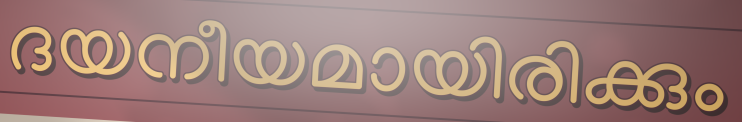
ദയനീയമായിരിക്കും